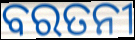
ବରତନୀ